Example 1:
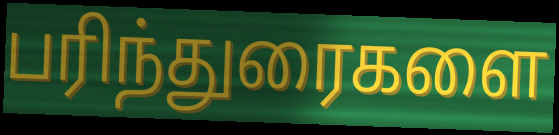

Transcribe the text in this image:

பரிந்துரைகளை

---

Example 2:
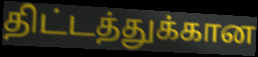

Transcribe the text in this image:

திட்டத்துக்கான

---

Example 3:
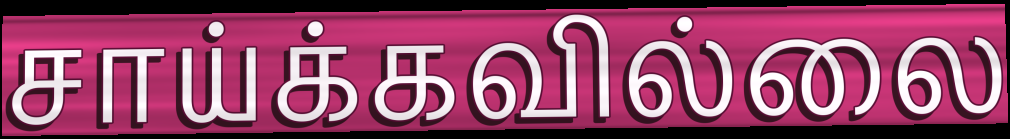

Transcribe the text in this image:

சாய்க்கவில்லை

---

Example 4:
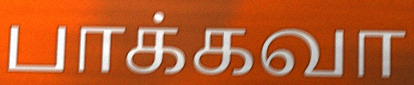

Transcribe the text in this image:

பாக்கவா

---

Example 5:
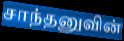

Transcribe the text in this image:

சாந்தனுவின்